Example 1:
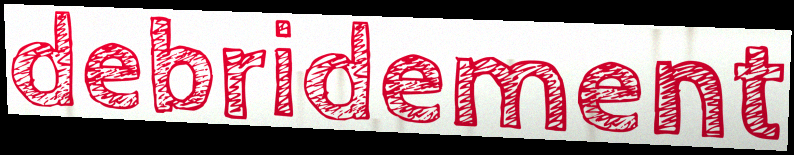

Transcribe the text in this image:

debridement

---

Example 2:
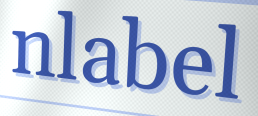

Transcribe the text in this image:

nlabel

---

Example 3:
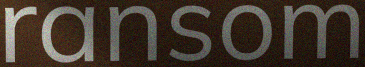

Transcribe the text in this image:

ransom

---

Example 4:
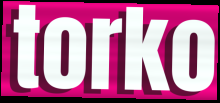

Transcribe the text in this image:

torko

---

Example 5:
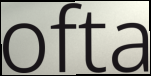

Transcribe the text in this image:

ofta